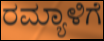
ರಮ್ಯಾಳಿಗೆ